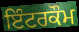
ਇੰਟਰਕੌਮ